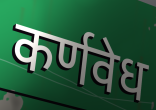
कर्णवेध